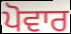
ਪੋਵਾਰ